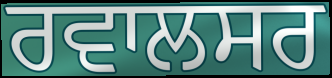
ਰਵਾਲਸਰ